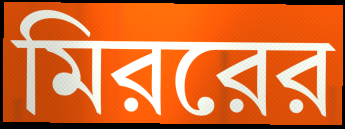
মিররের